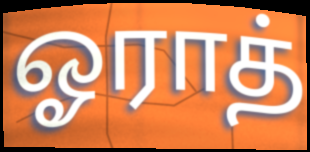
ஓராத்